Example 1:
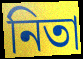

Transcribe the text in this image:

নিতা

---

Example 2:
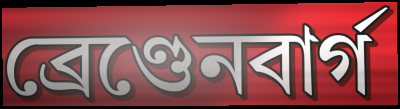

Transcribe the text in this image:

ব্ৰেণ্ডেনবাৰ্গ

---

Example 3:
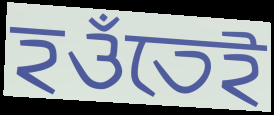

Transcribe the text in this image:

হওঁতেই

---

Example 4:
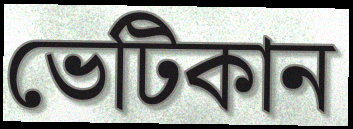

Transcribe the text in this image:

ভেটিকান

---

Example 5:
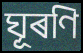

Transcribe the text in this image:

ঘূৰণি